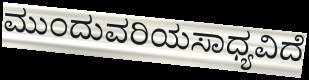
ಮುಂದುವರಿಯಸಾಧ್ಯವಿದೆ